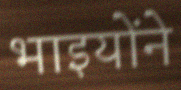
भाइयोंने